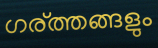
ഗര്ത്തങ്ങളും